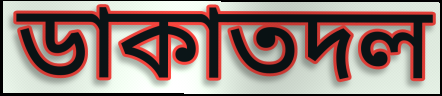
ডাকাতদল